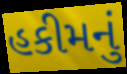
હકીમનું